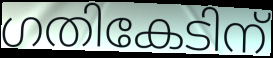
ഗതികേടിന്